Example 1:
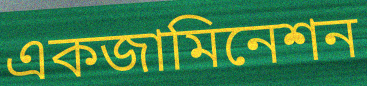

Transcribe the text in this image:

একজামিনেশন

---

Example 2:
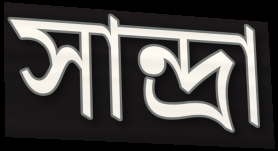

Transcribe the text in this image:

সান্দ্রা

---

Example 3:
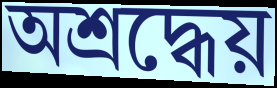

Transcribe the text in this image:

অশ্রদ্ধেয়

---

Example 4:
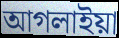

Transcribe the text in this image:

আগলাইয়া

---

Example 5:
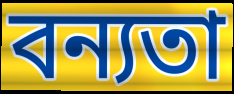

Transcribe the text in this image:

বন্যতা